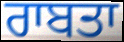
ਰਾਬਤਾ